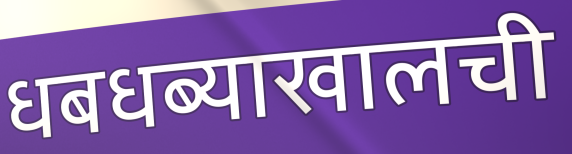
धबधब्याखालची